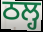
ਠਲ੍ਹ